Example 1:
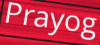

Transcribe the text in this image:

Prayog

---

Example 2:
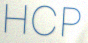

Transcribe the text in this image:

HCP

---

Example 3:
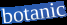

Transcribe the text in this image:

botanic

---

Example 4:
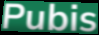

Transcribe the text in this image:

Pubis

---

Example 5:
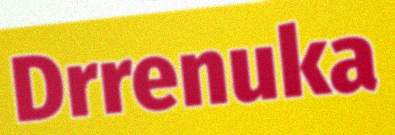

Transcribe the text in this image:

Drrenuka